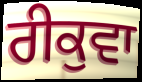
ਰੀਕੁਵਾ